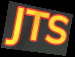
JTS